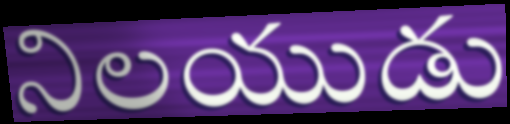
నిలయుడు